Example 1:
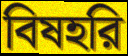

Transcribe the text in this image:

বিষহরি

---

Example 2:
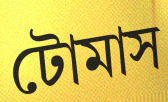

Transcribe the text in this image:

টোমাস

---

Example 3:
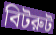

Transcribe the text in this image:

বিটরুট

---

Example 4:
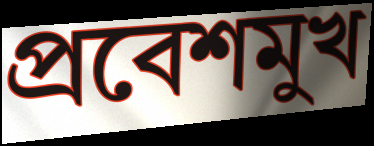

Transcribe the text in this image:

প্রবেশমুখ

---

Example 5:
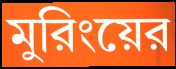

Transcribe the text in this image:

মুরিংয়ের